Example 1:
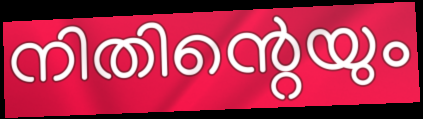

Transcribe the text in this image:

നിതിന്റെയും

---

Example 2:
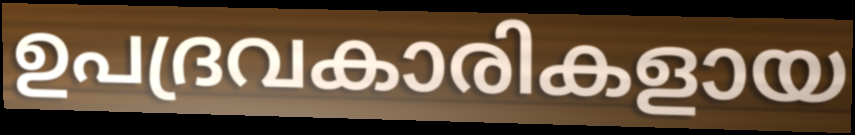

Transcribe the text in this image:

ഉപദ്രവകാരികളായ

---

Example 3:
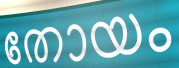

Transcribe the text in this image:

തോയം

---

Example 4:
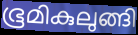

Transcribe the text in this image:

ഭൂമികുലുങ്ങി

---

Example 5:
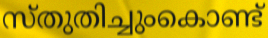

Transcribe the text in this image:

സ്തുതിച്ചുംകൊണ്ട്